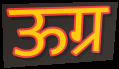
ऊग्र